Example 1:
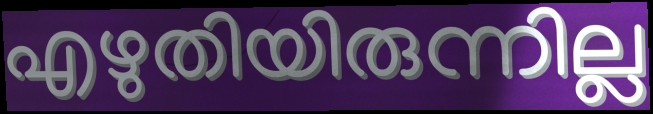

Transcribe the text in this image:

എഴുതിയിരുന്നില്ല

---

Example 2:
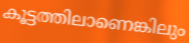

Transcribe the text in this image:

കൂട്ടത്തിലാണെങ്കിലും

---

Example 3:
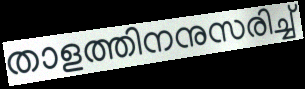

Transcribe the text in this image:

താളത്തിനനുസരിച്ച്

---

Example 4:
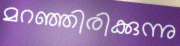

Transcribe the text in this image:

മറഞ്ഞിരിക്കുന്നു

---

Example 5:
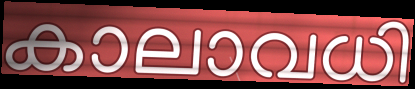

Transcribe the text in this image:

കാലാവധി